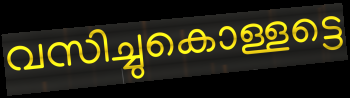
വസിച്ചുകൊള്ളട്ടെ